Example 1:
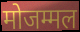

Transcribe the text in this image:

मोजम्मल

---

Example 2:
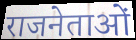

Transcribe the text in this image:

राजनेताओं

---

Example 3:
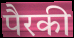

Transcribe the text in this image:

पैरकी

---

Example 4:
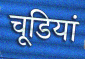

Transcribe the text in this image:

चूडियां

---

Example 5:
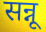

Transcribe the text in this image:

सन्नू